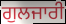
ਗੁਲਜਾਰੀ